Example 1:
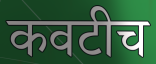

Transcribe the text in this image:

कवटीच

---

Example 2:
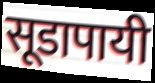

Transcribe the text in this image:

सूडापायी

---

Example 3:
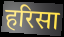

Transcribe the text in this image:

हरिसा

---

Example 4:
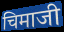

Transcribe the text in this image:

चिमाजी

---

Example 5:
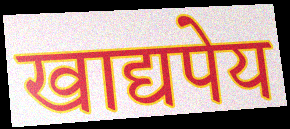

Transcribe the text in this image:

खाद्यपेय